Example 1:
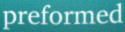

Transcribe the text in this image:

preformed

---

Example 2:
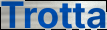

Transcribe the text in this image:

Trotta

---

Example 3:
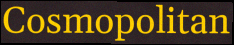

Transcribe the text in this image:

Cosmopolitan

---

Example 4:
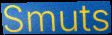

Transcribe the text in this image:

Smuts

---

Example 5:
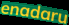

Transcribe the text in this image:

enadaru